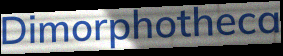
Dimorphotheca